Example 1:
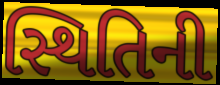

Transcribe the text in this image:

સ્થિતિની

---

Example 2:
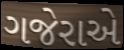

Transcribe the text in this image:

ગજેરાએ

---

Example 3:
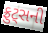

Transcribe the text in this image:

ફ્રુટ્સની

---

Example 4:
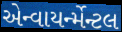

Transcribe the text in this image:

એન્વાયર્ન્મેન્ટલ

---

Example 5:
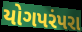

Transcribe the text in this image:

યોગપરંપરા